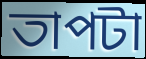
তাপটা